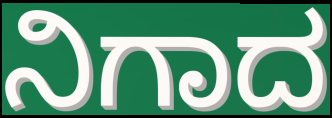
ನಿಗಾದ